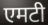
एमटी